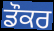
ਡੌਕਰ